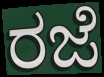
ರಜೆ